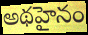
అథహైనం